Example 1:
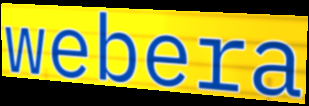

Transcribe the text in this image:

webera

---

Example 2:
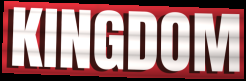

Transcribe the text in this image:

KINGDOM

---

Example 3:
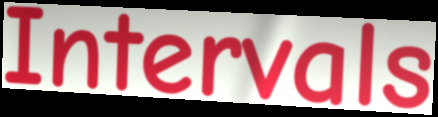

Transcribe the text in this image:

Intervals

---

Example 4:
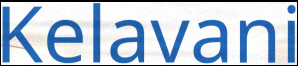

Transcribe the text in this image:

Kelavani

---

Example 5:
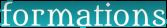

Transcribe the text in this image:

formations